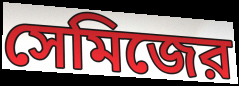
সেমিজের